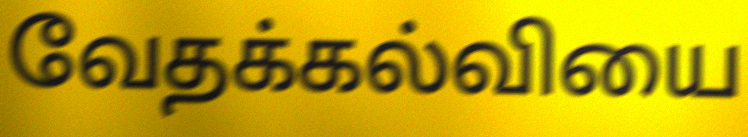
வேதக்கல்வியை